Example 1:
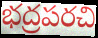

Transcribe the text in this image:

భద్రపరచి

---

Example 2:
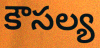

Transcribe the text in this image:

కౌసల్య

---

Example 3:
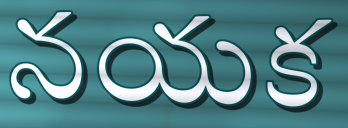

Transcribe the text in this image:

నయక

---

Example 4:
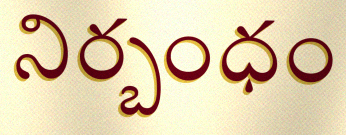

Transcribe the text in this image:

నిర్బంధం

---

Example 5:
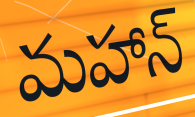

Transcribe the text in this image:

మహాన్